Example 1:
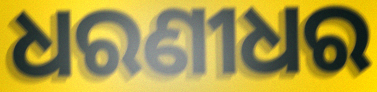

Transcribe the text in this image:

ଧରଣୀଧର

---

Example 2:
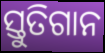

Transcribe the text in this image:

ସ୍ତୁତିଗାନ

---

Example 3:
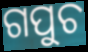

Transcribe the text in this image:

ଗପୁଚ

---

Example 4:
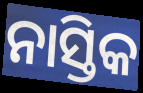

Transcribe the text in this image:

ନାସ୍ତିକ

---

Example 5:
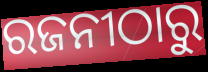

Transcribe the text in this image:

ରଜନୀଠାରୁ